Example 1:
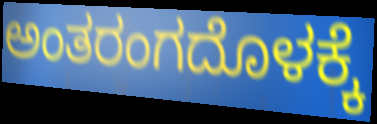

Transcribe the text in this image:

ಅಂತರಂಗದೊಳಕ್ಕೆ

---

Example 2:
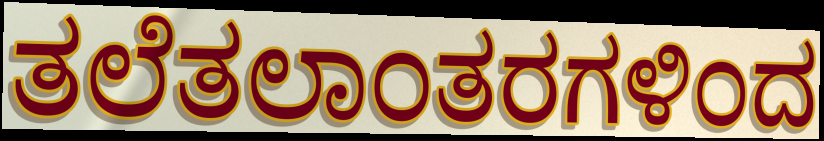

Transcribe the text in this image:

ತಲೆತಲಾಂತರಗಳಿಂದ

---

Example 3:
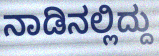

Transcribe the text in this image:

ನಾಡಿನಲ್ಲಿದ್ದು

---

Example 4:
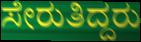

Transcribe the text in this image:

ಸೇರುತಿದ್ದರು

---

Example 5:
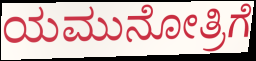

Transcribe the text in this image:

ಯಮುನೋತ್ರಿಗೆ